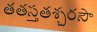
తతస్తతశ్చరసౌ